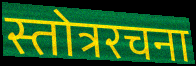
स्तोत्ररचना